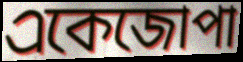
একেজোপা